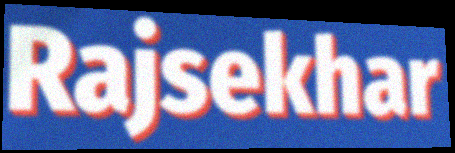
Rajsekhar